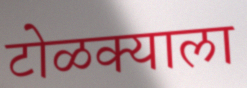
टोळक्याला